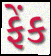
ફેંક